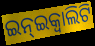
ଇନ୍ଇକ୍ଵାଲିଟି